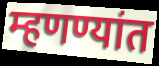
म्हणण्यांत